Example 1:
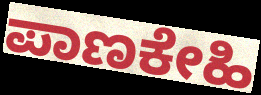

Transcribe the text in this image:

ಪಾಣಕೇಹಿ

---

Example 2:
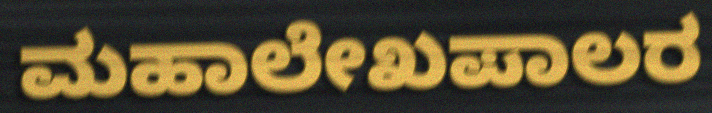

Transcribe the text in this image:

ಮಹಾಲೇಖಪಾಲರ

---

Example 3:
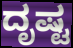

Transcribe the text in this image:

ದೃಷ್ಟ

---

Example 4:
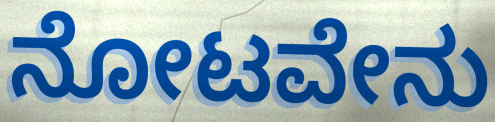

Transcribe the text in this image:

ನೋಟವೇನು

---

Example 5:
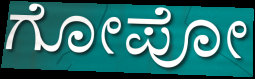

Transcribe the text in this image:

ಗೋಪೋ